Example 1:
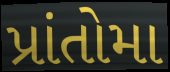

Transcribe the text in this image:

પ્રાંતોમા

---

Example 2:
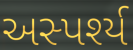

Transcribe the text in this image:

અસ્પર્શ્ય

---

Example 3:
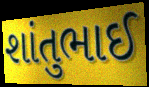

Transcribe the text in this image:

શાંતુભાઈ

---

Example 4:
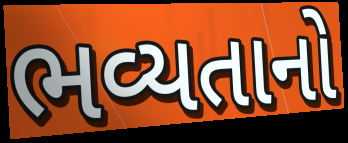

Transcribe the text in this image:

ભવ્યતાનો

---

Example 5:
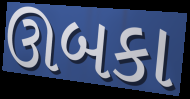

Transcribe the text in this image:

ઊબકા